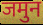
जमुन